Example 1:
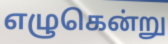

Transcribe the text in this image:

எழுகென்று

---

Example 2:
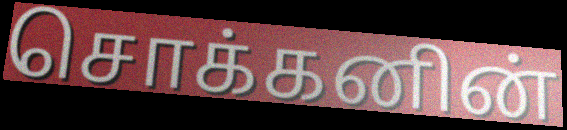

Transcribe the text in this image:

சொக்கனின்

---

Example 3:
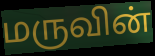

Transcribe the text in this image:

மருவின்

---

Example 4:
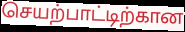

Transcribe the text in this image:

செயற்பாட்டிற்கான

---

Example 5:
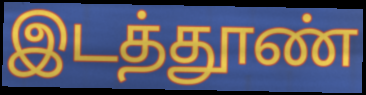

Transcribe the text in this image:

இடத்தூண்